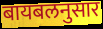
बायबलनुसार